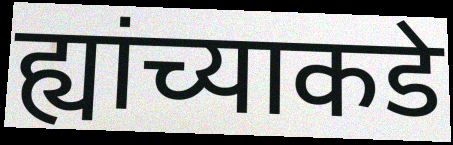
ह्यांच्याकडे